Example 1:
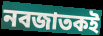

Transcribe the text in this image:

নবজাতকই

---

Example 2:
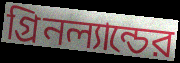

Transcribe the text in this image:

গ্রিনল্যান্ডের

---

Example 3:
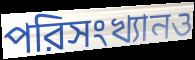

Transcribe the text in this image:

পরিসংখ্যানও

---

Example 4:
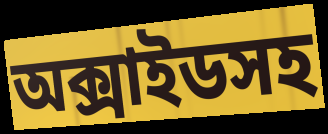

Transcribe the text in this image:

অক্সাইডসহ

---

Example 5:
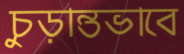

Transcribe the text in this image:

চুড়ান্তভাবে